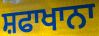
ਸ਼ਫਾਖਾਨਾ